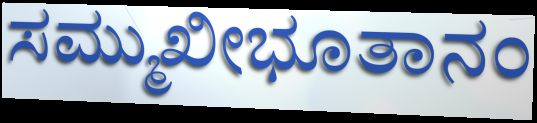
ಸಮ್ಮುಖೀಭೂತಾನಂ